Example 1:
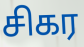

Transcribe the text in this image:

சிகர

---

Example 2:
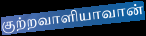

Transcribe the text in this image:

குற்றவாளியாவான்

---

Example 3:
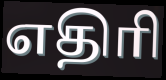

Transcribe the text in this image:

எதிரி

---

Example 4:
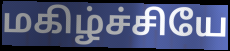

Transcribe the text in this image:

மகிழ்ச்சியே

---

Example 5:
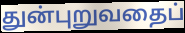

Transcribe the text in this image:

துன்புறுவதைப்